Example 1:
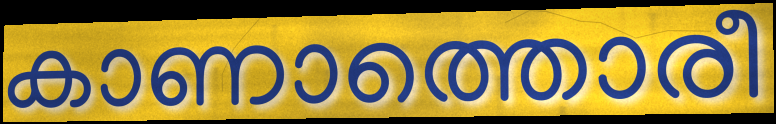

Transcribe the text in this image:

കാണാത്തൊരീ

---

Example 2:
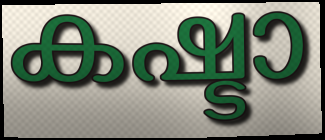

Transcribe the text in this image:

കഷ്ടാ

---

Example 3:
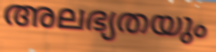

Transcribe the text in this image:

അലഭ്യതയും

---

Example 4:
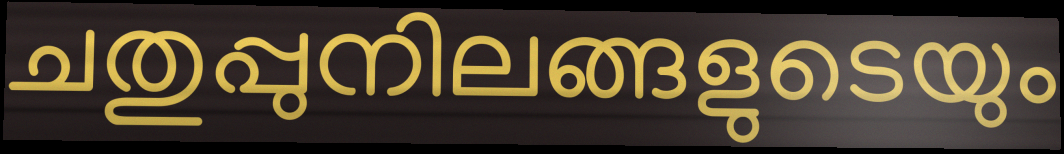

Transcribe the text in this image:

ചതുപ്പുനിലങ്ങളുടെയും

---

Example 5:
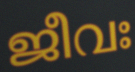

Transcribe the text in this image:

ജീവഃ